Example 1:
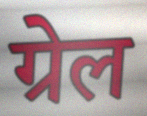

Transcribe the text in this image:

ग्रेल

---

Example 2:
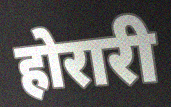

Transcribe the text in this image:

होरारी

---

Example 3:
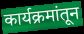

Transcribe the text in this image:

कार्यक्रमांतून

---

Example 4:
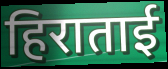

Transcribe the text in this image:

हिराताई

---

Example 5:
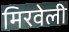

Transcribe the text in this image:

मिरवेली